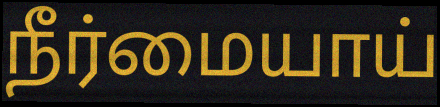
நீர்மையாய்